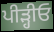
ਪੀੜ੍ਹੀਓ